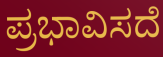
ಪ್ರಭಾವಿಸದೆ